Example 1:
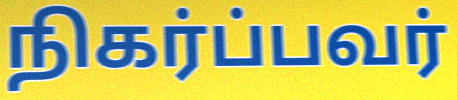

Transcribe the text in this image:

நிகர்ப்பவர்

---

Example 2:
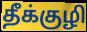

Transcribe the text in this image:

தீக்குழி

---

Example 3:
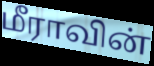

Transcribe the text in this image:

மீராவின்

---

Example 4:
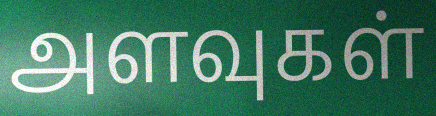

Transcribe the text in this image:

அளவுகள்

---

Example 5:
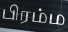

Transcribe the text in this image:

பிரம்ம